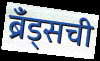
ब्रॅंड्सची